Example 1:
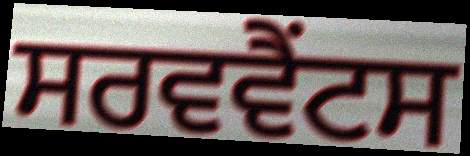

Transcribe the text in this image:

ਸਰਵਵੈਂਟਸ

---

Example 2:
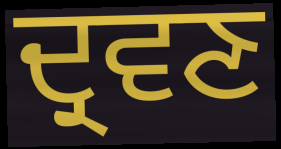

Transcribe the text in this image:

ਦ੍ਰਵਣ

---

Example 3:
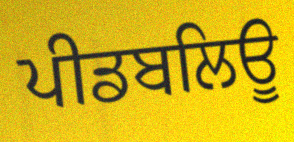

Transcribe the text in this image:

ਪੀਡਬਲਿਊ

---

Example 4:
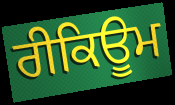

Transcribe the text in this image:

ਰੀਕਿਊਮ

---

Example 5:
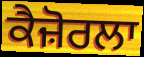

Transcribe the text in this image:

ਕੈਜ਼ੋਰਲਾ